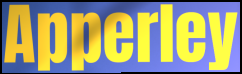
Apperley